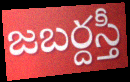
జబర్దస్తీ